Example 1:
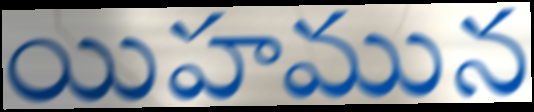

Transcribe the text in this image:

యిహమున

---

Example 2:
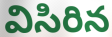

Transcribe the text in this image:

విసిరిన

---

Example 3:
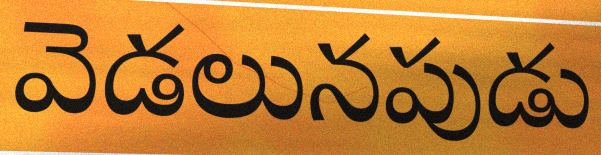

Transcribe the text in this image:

వెడలునపుడు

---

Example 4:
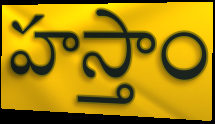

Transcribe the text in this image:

హస్తాం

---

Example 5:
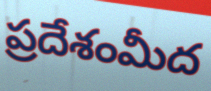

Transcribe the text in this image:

ప్రదేశంమీద